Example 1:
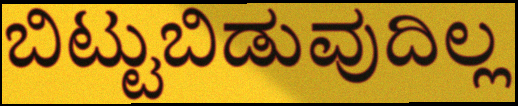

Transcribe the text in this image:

ಬಿಟ್ಟುಬಿಡುವುದಿಲ್ಲ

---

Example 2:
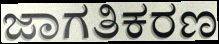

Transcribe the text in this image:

ಜಾಗತಿಕರಣ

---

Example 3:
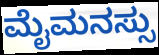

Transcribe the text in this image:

ಮೈಮನಸ್ಸು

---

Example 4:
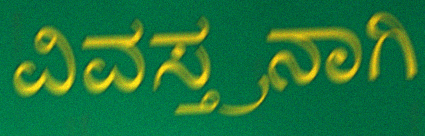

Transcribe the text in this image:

ವಿವಸ್ತ್ರನಾಗಿ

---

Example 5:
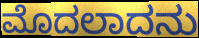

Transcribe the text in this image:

ಮೊದಲಾದನು